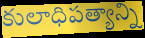
కులాధిపత్యాన్ని